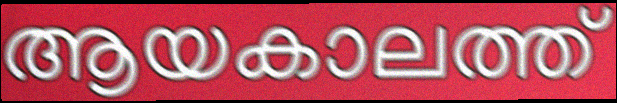
ആയകാലത്ത്